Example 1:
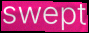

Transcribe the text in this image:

swept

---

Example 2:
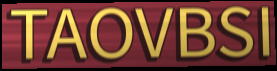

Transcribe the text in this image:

TAOVBSI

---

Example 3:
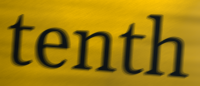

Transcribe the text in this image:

tenth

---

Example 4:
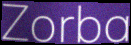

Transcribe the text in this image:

Zorba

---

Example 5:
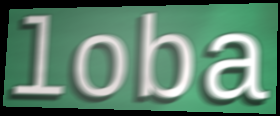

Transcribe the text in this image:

loba